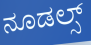
ನೂಡಲ್ಸ್